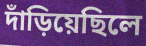
দাঁড়িয়েছিলে